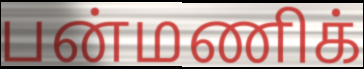
பன்மணிக்